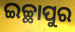
ଇଚ୍ଛାପୁର